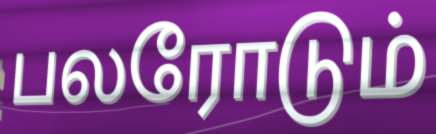
பலரோடும்